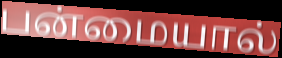
பன்மையால்